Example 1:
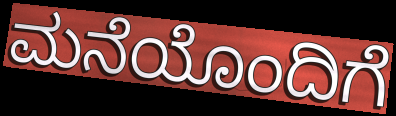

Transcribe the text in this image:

ಮನೆಯೊಂದಿಗೆ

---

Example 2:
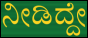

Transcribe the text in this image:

ನೀಡಿದ್ದೇ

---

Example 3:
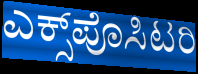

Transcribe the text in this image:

ಎಕ್ಸ್‌ಪೊಸಿಟರಿ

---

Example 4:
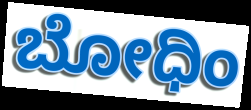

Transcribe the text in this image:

ಬೋಧಿಂ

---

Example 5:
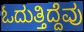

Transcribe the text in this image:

ಓದುತ್ತಿದ್ದೆವು